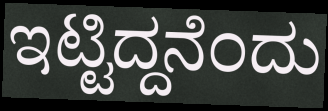
ಇಟ್ಟಿದ್ದನೆಂದು